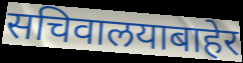
सचिवालयाबाहेर